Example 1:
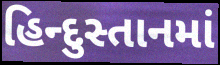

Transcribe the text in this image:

હિન્દુસ્તાનમાં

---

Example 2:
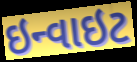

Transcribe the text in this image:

ઇન્વાઇટ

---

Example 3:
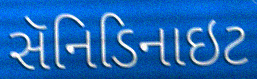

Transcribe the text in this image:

સૅનિડિનાઇટ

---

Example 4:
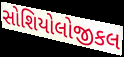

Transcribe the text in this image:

સોશિયોલોજીકલ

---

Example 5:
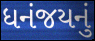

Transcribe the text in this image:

ધનંજયનું